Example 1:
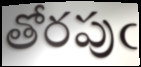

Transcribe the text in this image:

తోరపుఁ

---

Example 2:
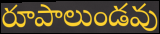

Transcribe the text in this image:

రూపాలుండవు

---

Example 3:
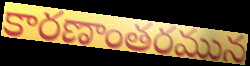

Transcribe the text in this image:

కారణాంతరమున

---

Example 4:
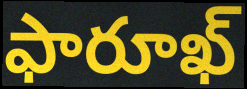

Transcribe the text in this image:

ఫారూఖ్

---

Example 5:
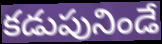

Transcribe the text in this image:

కడుపునిండే